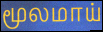
மூலமாய்